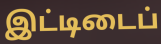
இட்டிடைப்